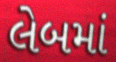
લેબમાં